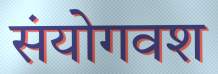
संयोगवश